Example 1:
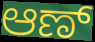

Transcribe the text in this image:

ಆಣ್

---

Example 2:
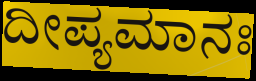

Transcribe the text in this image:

ದೀಪ್ಯಮಾನಃ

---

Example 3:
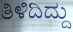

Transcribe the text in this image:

ತಿಳಿದಿದ್ದು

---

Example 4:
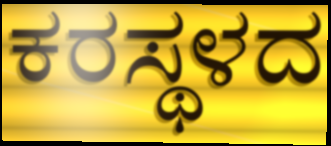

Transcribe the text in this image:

ಕರಸ್ಥಳದ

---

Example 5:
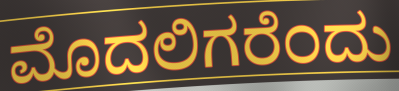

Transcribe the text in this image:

ಮೊದಲಿಗರೆಂದು